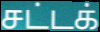
சட்டக்